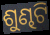
ଶୁଣ୍ଢଟି